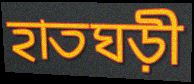
হাতঘড়ী